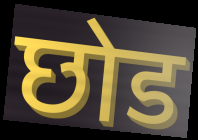
छोड